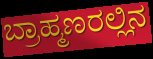
ಬ್ರಾಹ್ಮಣರಲ್ಲಿನ